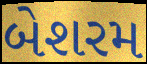
બેશરમ